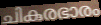
ചികുരഭാരം